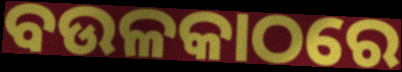
ବଉଳକାଠରେ